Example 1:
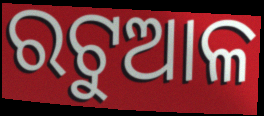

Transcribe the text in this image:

ରଟୁଆଳ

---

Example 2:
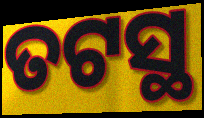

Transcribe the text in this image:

ତଟସ୍ଥ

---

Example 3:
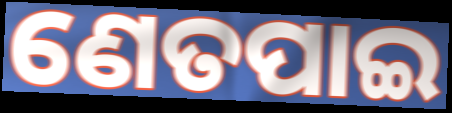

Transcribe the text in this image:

ଣେତପାଇ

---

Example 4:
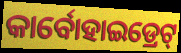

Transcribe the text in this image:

କାର୍ବୋହାଇଡ୍ରେଟ୍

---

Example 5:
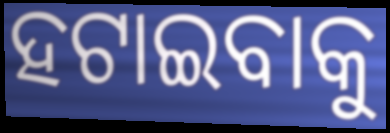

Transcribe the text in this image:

ହଟାଇବାକୁ